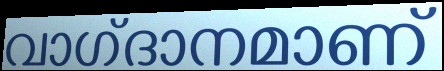
വാഗ്‌ദാനമാണ്